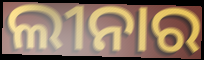
ଲୀନାର